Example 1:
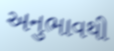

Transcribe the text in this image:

અનુભાવથી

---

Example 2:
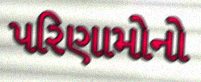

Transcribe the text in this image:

પરિણામોનો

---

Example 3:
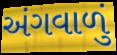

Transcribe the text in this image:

અંગવાળું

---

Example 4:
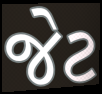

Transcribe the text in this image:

જેટ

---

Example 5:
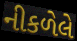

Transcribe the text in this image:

નીકળેલે